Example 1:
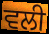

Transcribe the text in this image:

ਵਲੀ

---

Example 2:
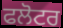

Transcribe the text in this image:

ਫਲੋਟਰ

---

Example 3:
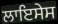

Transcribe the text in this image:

ਲਾਇਸੇਸ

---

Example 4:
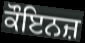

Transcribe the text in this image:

ਕੌਇਨਜ਼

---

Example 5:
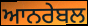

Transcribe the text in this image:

ਆਨਰੇਬਲ